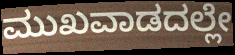
ಮುಖವಾಡದಲ್ಲೇ